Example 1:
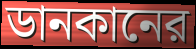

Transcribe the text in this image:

ডানকানের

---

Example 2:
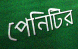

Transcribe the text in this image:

পেনিটির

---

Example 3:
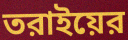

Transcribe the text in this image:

তরাইয়ের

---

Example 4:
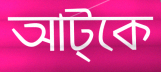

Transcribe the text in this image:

আট্‌কে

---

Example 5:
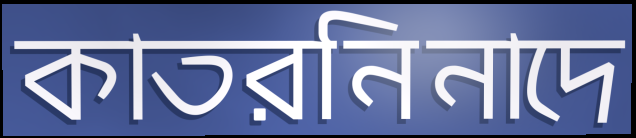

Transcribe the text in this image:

কাতরনিনাদে